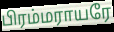
பிரம்மராயரே